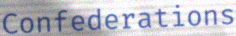
Confederations